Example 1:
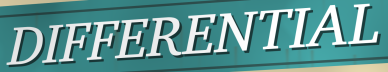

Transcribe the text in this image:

DIFFERENTIAL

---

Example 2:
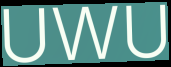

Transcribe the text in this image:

UWU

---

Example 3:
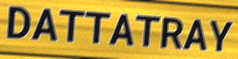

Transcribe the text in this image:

DATTATRAY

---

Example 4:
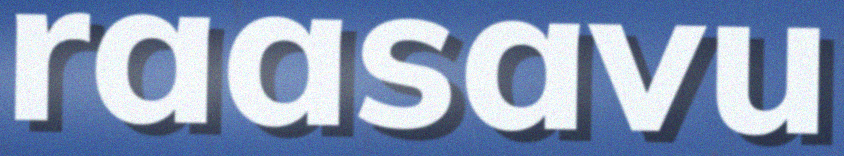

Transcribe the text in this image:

raasavu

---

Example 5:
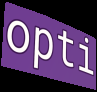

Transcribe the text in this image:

opti